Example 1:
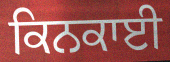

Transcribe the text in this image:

ਕਿਨਕਾਈ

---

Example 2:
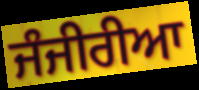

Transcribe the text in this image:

ਜੰਜੀਰੀਆ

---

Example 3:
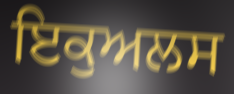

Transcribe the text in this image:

ਇਕੁਅਲਸ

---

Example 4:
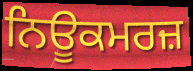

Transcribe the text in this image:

ਨਿਊਕਮਰਜ਼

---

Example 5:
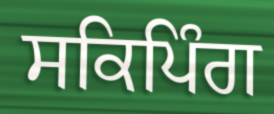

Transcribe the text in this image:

ਸਕਿਪਿੰਗ